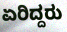
ಏರಿದ್ದರು